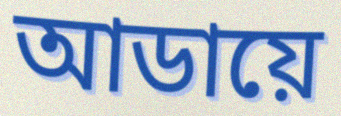
আডায়ে